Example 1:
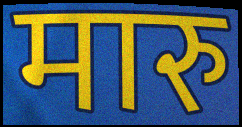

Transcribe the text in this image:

मारु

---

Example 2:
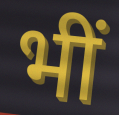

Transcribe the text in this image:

भीं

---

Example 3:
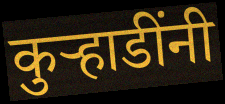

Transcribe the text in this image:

कुर्‍हाडींनी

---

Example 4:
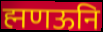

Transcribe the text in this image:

ह्मणऊनि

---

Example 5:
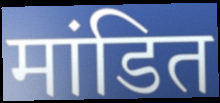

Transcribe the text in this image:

मांडित